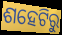
ଶହେଟିରୁ